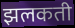
झलकती